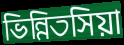
ভিন্নিতসিয়া